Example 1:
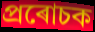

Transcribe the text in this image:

প্ৰৰোচক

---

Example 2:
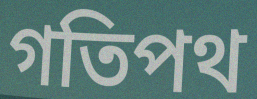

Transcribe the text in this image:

গতিপথ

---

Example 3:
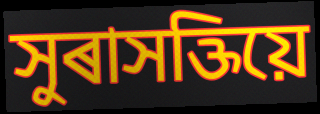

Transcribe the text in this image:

সুৰাসক্তিয়ে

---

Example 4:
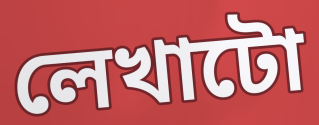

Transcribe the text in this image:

লেখাটো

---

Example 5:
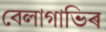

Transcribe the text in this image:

বেলাগাভিৰ